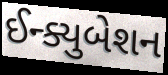
ઈન્ક્યુબેશન